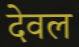
देवल